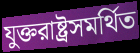
যুক্তরাষ্ট্রসমর্থিত